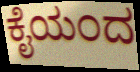
ಕೈಯಂದ